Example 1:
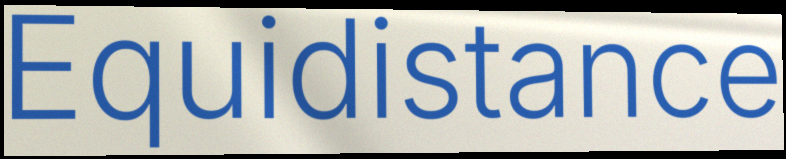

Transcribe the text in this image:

Equidistance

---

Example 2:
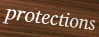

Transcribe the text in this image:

protections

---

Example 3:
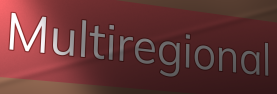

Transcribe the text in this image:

Multiregional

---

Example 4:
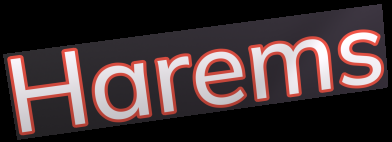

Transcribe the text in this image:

Harems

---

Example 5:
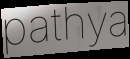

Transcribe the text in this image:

pathya